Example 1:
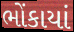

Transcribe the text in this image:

ભોંકાયાં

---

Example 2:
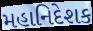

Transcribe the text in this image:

મહાનિદેશક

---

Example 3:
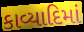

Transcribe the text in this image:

કાવ્યાદિમાં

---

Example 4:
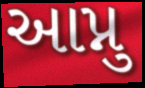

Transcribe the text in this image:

આપ્નુ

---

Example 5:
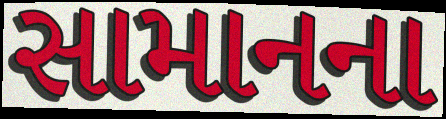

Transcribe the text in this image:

સામાનના